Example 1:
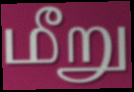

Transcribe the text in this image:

மீறு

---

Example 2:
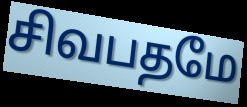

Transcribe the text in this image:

சிவபதமே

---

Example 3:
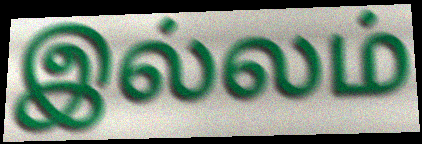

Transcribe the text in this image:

இல்லம்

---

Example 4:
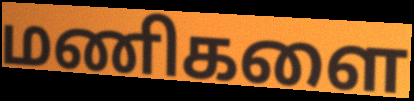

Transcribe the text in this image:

மணிகளை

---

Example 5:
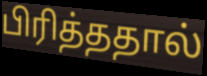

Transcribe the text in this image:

பிரித்ததால்